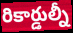
రికార్డుల్నీ